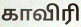
காவிரி